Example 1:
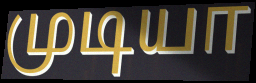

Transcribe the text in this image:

முடியா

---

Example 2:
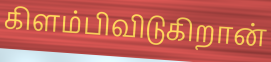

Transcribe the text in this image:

கிளம்பிவிடுகிறான்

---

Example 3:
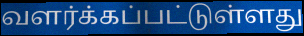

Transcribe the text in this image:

வளர்க்கப்பட்டுள்ளது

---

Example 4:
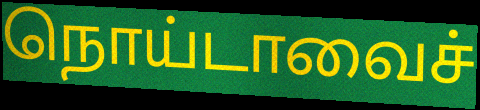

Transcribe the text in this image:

நொய்டாவைச்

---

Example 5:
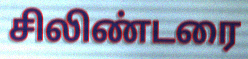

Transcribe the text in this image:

சிலிண்டரை